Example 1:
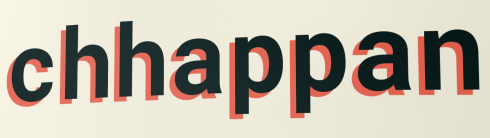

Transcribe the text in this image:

chhappan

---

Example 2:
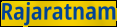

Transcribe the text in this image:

Rajaratnam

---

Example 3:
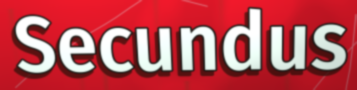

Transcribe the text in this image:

Secundus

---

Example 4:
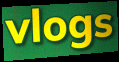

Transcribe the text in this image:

vlogs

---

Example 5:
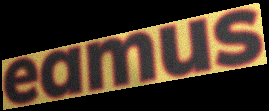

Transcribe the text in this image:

eamus